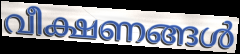
വീക്ഷണങ്ങൾ